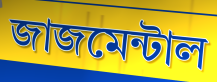
জাজমেন্টাল